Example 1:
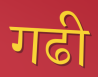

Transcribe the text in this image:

गढी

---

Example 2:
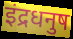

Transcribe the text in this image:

इंद्रधनुष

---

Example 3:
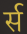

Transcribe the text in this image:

र्स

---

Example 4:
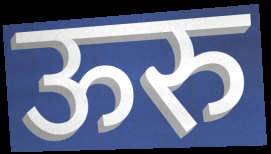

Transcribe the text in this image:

ऊरु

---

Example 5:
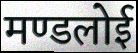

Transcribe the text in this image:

मण्डलोई